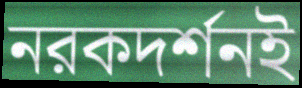
নরকদর্শনই